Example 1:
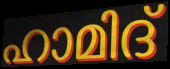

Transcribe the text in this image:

ഹാമിദ്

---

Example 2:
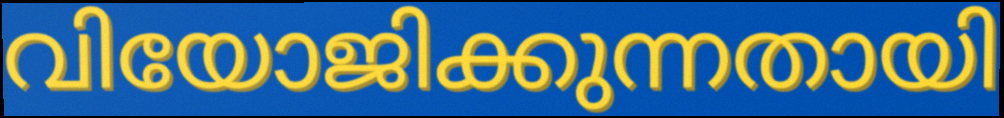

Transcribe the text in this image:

വിയോജിക്കുന്നതായി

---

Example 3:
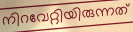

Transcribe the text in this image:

നിറവേറ്റിയിരുന്നത്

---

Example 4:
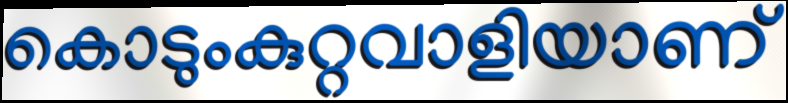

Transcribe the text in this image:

കൊടുംകുറ്റവാളിയാണ്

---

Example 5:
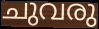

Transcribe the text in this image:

ചുവരു